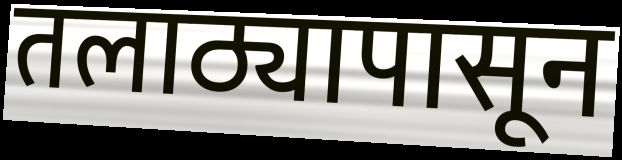
तलाठ्यापासून